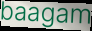
baagam